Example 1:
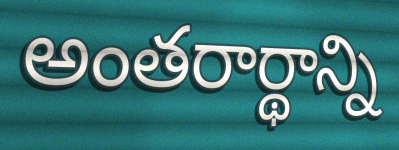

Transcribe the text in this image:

అంతరార్థాన్ని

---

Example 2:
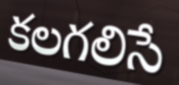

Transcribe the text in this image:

కలగలిసే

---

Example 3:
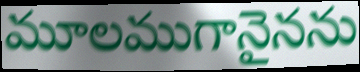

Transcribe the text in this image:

మూలముగానైనను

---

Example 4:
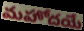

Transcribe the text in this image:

మహోదయే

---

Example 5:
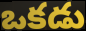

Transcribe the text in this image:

ఒకడు